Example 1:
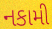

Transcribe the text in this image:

નકામી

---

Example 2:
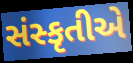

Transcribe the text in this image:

સંસ્કૃતીએ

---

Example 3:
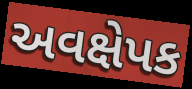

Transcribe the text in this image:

અવક્ષેપક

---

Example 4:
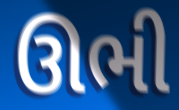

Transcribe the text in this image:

ઊભી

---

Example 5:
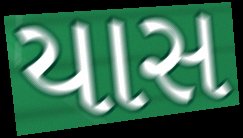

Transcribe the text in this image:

યાસ